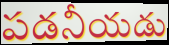
పడనీయడు